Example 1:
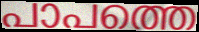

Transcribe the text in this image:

പാപത്തെ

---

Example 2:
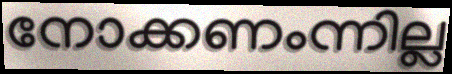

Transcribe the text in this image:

നോക്കണംന്നില്ല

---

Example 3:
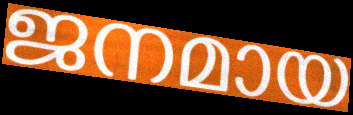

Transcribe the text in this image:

ജനമായ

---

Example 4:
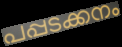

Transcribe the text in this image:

പപ്പടക്കനം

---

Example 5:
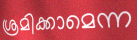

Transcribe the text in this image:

ശ്രമിക്കാമെന്ന